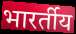
भारर्तीय